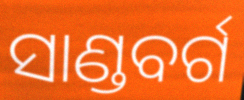
ସାଣ୍ଡବର୍ଗ